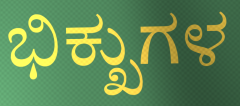
ಭಿಕ್ಖುಗಳ